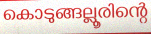
കൊടുങ്ങല്ലൂരിന്റെ